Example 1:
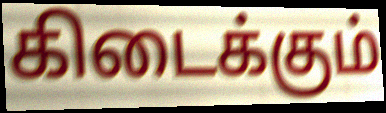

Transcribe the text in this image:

கிடைக்கும்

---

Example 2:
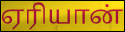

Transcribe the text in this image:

ஏரியான்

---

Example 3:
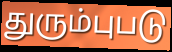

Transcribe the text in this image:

துரும்புபடு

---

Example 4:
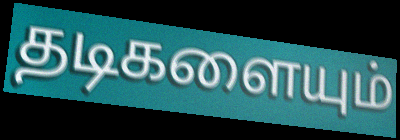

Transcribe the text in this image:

தடிகளையும்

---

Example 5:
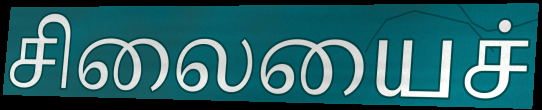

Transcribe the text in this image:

சிலையைச்